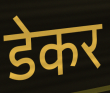
डेकर